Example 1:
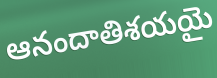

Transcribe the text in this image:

ఆనందాతిశయయై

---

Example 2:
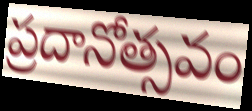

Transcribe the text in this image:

ప్రదానోత్సవం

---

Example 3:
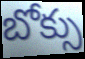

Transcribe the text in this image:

బోక్సు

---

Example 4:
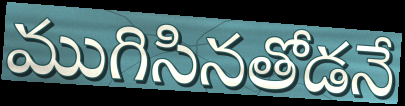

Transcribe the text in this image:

ముగిసినతోడనే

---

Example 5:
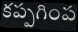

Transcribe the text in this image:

కప్పగింప